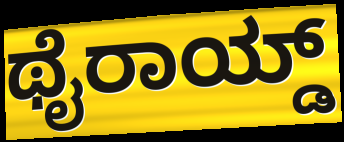
ಥೈರಾಯ್ಡ್